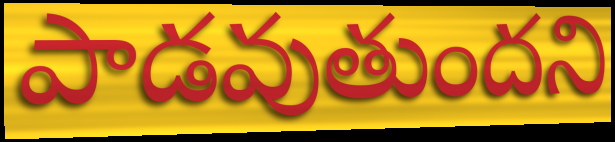
పాడవుతుందని